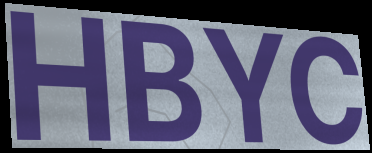
HBYC